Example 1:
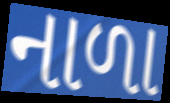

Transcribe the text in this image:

નાળા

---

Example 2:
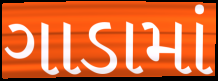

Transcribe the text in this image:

ગાડામાં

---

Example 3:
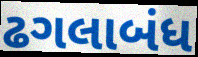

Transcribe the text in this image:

ઢગલાબંધ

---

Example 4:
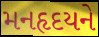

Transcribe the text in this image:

મનહૃદયને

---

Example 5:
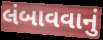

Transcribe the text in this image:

લંબાવવાનું